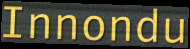
Innondu